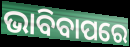
ଭାବିବାପରେ